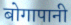
बोगापानी